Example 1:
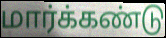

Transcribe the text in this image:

மார்க்கண்டு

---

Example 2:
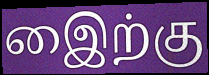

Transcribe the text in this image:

இைற்கு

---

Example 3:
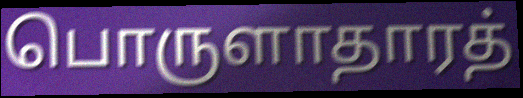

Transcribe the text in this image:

பொருளாதாரத்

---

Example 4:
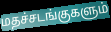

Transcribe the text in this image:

மதச்சடங்குகளும்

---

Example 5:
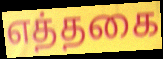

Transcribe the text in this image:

எத்தகை